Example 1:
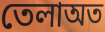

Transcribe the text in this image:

তেলাঅত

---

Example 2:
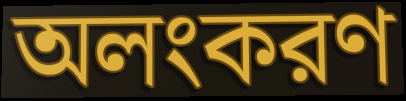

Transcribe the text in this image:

অলংকরণ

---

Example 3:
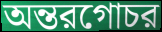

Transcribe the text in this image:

অন্তরগোচর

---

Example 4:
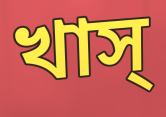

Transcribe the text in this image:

খাস্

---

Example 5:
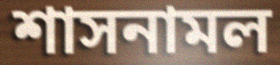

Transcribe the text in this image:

শাসনামল